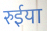
रुईया